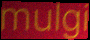
mulgi